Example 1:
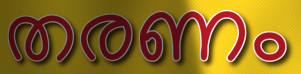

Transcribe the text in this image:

തരണം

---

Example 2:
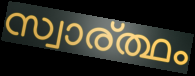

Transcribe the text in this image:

സ്വാര്ത്ഥം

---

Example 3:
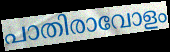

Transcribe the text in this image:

പാതിരാവോളം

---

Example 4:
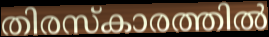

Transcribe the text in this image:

തിരസ്കാരത്തിൽ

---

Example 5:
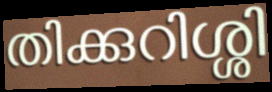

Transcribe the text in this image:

തിക്കുറിശ്ശി